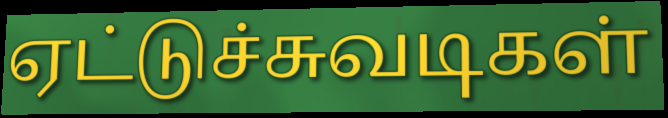
ஏட்டுச்சுவடிகள்